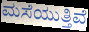
ಮಸೆಯುತ್ತಿವೆ